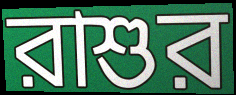
রাশুর